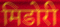
मिडोरी